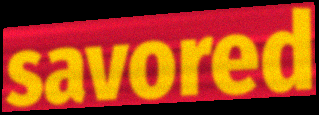
savored